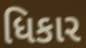
ધિકાર